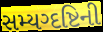
સમ્યગ્દષ્ટિની